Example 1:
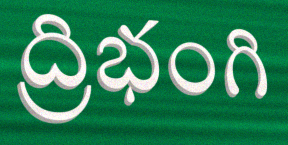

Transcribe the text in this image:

ద్రిభంగి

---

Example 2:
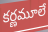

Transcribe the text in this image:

కర్ణమూలే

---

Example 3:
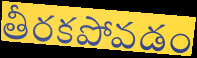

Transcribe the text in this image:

తీరకపోవడం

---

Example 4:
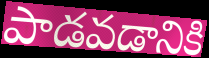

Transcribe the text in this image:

పాడవడానికి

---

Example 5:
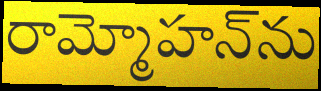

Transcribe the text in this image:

రామ్మోహన్‌ను